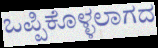
ಒಪ್ಪಿಕೊಳ್ಳಲಾಗದ